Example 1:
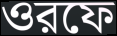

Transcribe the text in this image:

ওরফে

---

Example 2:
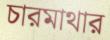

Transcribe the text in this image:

চারমাথার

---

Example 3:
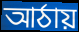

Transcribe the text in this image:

আঠায়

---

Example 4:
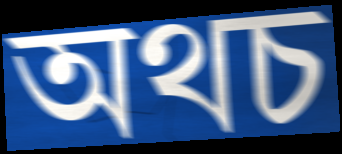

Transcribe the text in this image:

অথচ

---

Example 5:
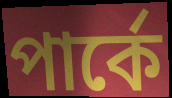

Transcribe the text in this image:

পার্কে